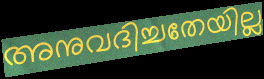
അനുവദിച്ചതേയില്ല